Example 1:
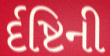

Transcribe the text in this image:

ર્દષ્ટિની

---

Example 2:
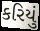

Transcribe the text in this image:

કરિયું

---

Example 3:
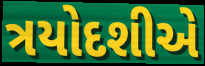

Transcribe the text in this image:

ત્રયોદશીએ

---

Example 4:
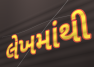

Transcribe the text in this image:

લેખમાંથી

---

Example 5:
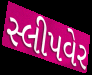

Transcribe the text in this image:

સ્લીપવેર